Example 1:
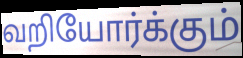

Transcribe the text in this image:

வறியோர்க்கும்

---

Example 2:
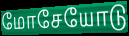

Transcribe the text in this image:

மோசேயோடு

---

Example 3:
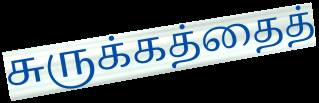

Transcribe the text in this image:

சுருக்கத்தைத்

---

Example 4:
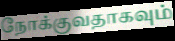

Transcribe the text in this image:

நோக்குவதாகவும்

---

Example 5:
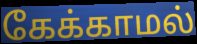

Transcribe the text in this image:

கேக்காமல்